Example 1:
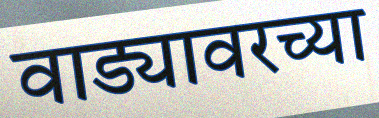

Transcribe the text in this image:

वाड्यावरच्या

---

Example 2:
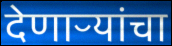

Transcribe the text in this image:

देणाऱ्यांचा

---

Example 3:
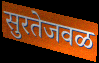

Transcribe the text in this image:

सुरतेजवळ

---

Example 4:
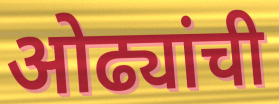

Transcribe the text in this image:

ओढ्यांची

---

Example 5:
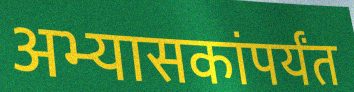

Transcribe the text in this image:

अभ्यासकांपर्यंत